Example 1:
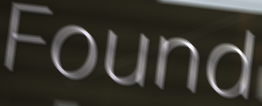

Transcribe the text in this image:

Found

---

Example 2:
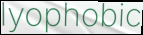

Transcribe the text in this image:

lyophobic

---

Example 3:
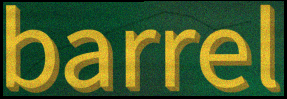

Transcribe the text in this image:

barrel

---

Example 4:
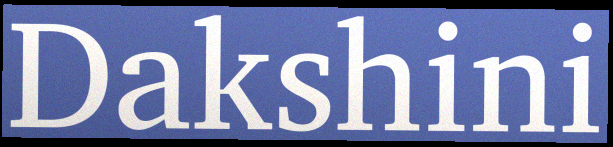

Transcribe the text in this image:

Dakshini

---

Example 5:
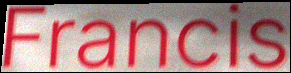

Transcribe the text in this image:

Francis